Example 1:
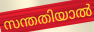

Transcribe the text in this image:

സന്തതിയാൽ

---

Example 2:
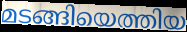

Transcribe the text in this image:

മടങ്ങിയെത്തിയ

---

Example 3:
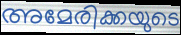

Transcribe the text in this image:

അമേരിക്കയുടെ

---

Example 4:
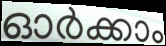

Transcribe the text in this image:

ഓർക്കാം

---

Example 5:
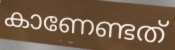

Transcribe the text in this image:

കാണേണ്ടത്